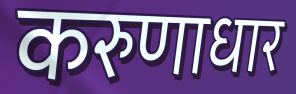
करुणाधार